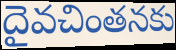
దైవచింతనకు